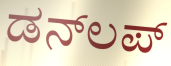
ಡನ್‌ಲಪ್